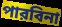
পারবিনা